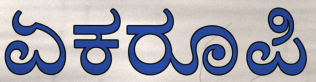
ಏಕರೂಪಿ